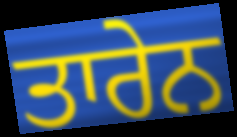
ਤਾਰੇਨ